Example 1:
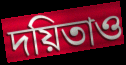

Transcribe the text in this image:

দয়িতাও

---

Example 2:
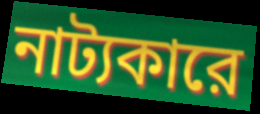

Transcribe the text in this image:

নাট্যকারে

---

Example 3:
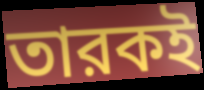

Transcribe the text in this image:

তারকই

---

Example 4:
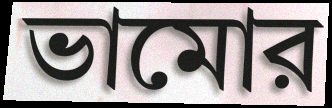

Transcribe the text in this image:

ভামোর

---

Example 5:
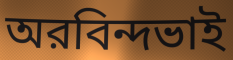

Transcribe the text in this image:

অরবিন্দভাই